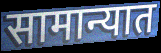
सामान्यात